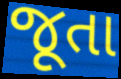
જૂતા